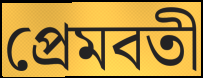
প্রেমবতী